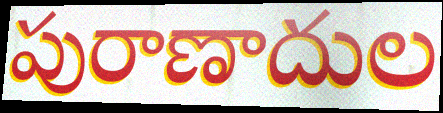
పురాణాదుల